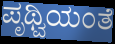
ಪೃಥ್ವಿಯಂತೆ